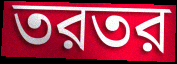
তরতর